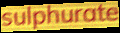
sulphurate